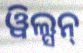
ୱିଲ୍ସନ୍